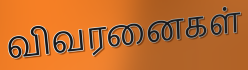
விவரனைகள்